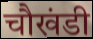
चौखंडी